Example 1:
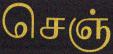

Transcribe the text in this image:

செஞ்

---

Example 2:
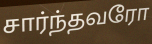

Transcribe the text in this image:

சார்ந்தவரோ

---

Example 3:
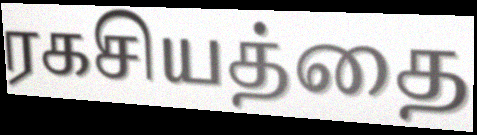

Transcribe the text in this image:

ரகசியத்தை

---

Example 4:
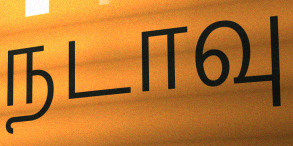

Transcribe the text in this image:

நடாவு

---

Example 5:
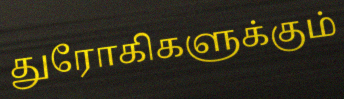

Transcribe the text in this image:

துரோகிகளுக்கும்